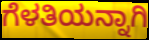
ಗೆಳತಿಯನ್ನಾಗಿ